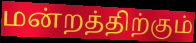
மன்றத்திற்கும்